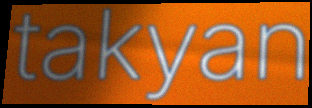
takyan